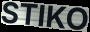
STIKO